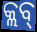
କ୍ଲବ୍